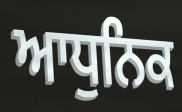
ਆਧੁਨਿਕ